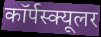
कॉर्पस्क्यूलर